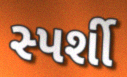
સ્પર્શી